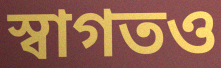
স্বাগতও